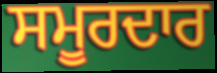
ਸਮੂਰਦਾਰ